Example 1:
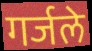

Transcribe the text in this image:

गर्जले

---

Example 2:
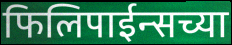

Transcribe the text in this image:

फिलिपाईन्सच्या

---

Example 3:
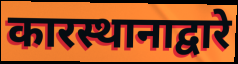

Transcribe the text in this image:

कारस्थानाद्वारे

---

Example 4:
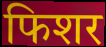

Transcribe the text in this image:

फिशर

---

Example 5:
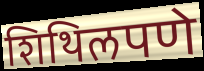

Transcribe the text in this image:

शिथिलपणे